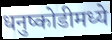
धनुष्कोडीमध्ये